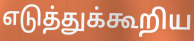
எடுத்துக்கூறிய